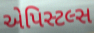
એપિસ્ટલ્સ